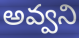
అవ్వని